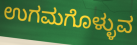
ಉಗಮಗೊಳ್ಳುವ